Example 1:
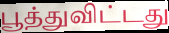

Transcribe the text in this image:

பூத்துவிட்டது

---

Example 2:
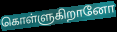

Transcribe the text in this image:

கொள்ளுகிறானோ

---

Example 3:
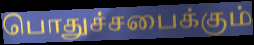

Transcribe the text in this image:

பொதுச்சபைக்கும்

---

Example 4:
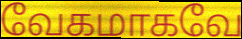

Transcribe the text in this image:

வேகமாகவே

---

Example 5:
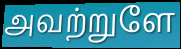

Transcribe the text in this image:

அவற்றுளே